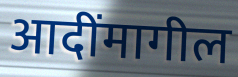
आदींमागील